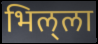
भिल्ला